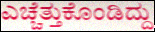
ಎಚ್ಚೆತ್ತುಕೊಂಡಿದ್ದು